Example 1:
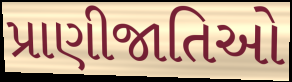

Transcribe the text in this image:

પ્રાણીજાતિઓ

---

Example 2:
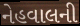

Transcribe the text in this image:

નેહવાલની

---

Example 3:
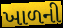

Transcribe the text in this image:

ખાળની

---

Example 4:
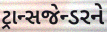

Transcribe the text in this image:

ટ્રાન્સજેન્ડરને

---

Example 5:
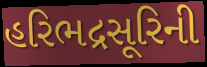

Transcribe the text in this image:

હરિભદ્રસૂરિની